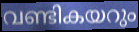
വണ്ടികയറും